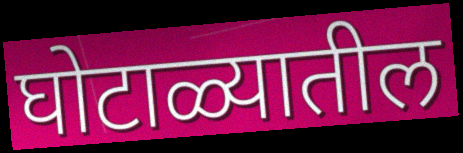
घोटाळ्यातील